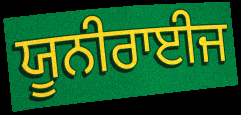
ਯੂਨੀਰਾਈਜ